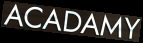
ACADAMY